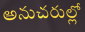
అనుచరుల్లో